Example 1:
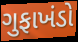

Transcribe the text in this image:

ગુફાખંડો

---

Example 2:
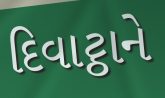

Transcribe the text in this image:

દિવાટ્ઠાને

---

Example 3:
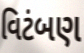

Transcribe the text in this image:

વિટંબણ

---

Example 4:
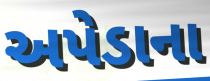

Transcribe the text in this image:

અપેડાના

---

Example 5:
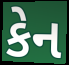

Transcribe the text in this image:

કેન